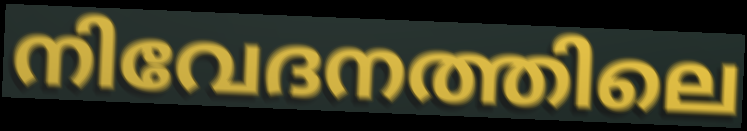
നിവേദനത്തിലെ